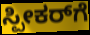
ಸ್ಪೀಕರ್‌ಗೆ